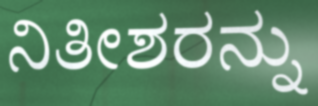
ನಿತೀಶರನ್ನು